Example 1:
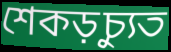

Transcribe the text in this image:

শেকড়চ্যুত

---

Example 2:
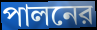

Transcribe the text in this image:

পালনের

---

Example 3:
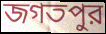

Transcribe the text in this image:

জগতপুর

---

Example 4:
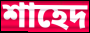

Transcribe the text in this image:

শাহেদ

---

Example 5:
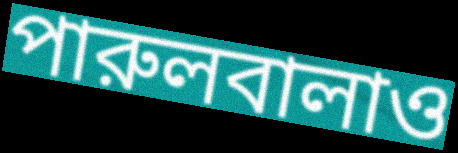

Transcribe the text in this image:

পারুলবালাও